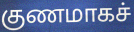
குணமாகச்